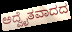
ಅದ್ವೈತವಾದದ